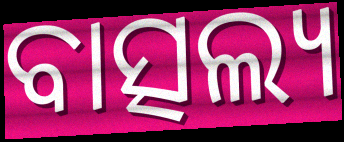
ବାତ୍ସଲ୍ଯ